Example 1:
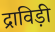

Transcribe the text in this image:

द्राविड़ी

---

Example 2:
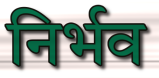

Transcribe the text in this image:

निर्भव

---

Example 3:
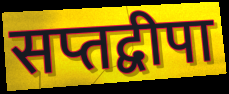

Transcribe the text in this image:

सप्तद्वीपा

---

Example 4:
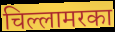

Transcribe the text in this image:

चिल्लामरका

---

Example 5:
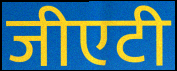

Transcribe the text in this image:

जीएटी